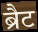
ब्रैट